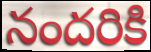
నందరికి